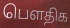
பௌதிக